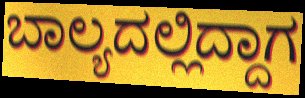
ಬಾಲ್ಯದಲ್ಲಿದ್ದಾಗ